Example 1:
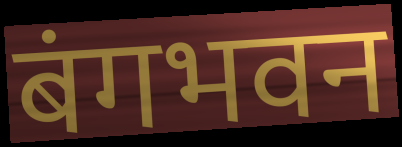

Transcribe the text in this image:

बंगभवन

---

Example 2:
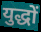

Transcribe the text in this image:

युद्धों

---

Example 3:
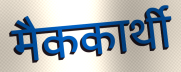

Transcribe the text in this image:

मैककार्थी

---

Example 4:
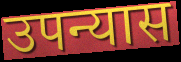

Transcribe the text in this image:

उपन्यास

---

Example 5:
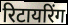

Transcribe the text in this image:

रिटायरिंग